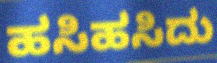
ಹಸಿಹಸಿದು